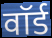
वॉर्ड